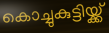
കൊച്ചുകുട്ടിയ്ക്ക്